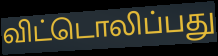
விட்டொலிப்பது